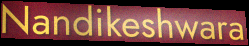
Nandikeshwara